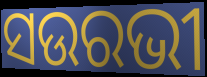
ସଉରଭୀ